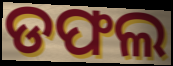
ଡଫଲ